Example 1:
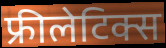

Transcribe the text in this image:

फ्रीलेटिक्स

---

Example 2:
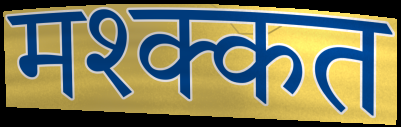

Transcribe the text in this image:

मश्क्कत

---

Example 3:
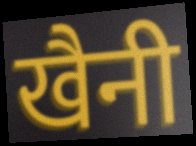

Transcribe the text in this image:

खैनी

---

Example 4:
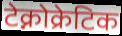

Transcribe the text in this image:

टेक्नोक्रेटिक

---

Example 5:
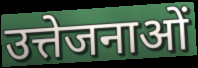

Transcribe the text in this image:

उत्तेजनाओं